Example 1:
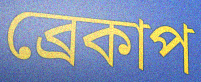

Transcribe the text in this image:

ব্রেকাপ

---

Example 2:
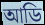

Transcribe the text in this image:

আডি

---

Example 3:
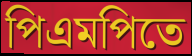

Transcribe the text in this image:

পিএমপিতে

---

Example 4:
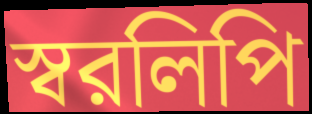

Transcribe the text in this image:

স্বরলিপি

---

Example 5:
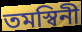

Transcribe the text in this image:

তমস্বিনী